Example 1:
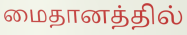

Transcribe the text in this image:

மைதானத்தில்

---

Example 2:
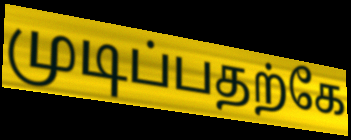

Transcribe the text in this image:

முடிப்பதற்கே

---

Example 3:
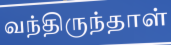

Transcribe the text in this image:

வந்திருந்தாள்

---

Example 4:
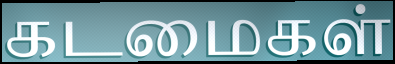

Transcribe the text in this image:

கடமைகள்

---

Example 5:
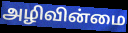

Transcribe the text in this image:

அழிவின்மை